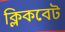
ক্লিকবেট